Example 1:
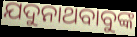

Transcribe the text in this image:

ଯଦୁନାଥବାବୁଙ୍କ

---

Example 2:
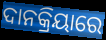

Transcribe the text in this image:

ଦାନକ୍ରିୟାରେ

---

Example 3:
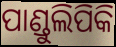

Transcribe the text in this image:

ପାଣ୍ଡୁଲିପିକି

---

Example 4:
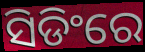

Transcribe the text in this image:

ସିଡିଂରେ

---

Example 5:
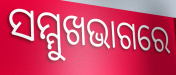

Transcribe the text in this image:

ସମ୍ମୁଖଭାଗରେ